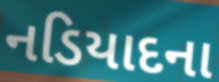
નડિયાદના